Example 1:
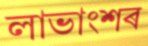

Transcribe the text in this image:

লাভাংশৰ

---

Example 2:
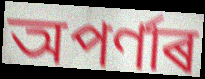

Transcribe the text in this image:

অপৰ্ণাৰ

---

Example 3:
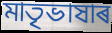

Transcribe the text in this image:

মাতৃভাষাৰ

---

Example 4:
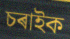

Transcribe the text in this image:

চৰাইক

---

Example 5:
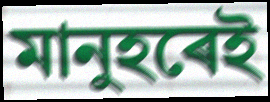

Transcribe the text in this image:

মানুহৰেই